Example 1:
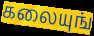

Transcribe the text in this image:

கலையுங்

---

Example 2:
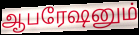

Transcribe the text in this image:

ஆபரேஷனும்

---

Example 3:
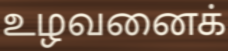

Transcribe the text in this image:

உழவனைக்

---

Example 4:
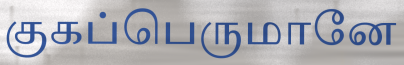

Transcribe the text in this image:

குகப்பெருமானே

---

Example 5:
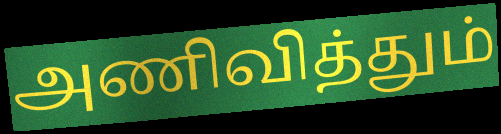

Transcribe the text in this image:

அணிவித்தும்